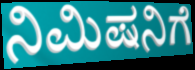
ನಿಮಿಷನಿಗೆ